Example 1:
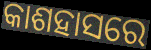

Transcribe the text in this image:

କାଶହାସରେ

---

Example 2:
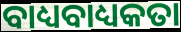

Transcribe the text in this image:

ବାଧ୍ୟବାଧ୍ୟକତା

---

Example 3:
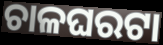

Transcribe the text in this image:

ଚାଳଘରଟା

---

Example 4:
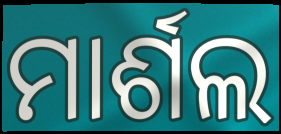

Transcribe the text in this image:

ମାର୍ଶଲ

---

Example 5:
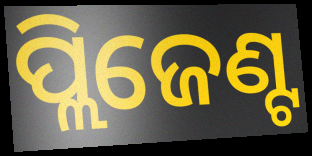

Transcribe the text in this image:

ପ୍ଲିଜେଣ୍ଟ